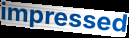
impressed